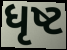
ધૃષ્ટ